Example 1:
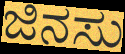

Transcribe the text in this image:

ಜಿನಸು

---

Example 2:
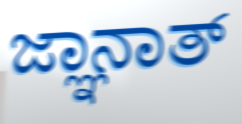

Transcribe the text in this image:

ಜ್ಞಾನಾತ್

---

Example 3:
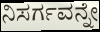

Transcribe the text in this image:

ನಿಸರ್ಗವನ್ನೇ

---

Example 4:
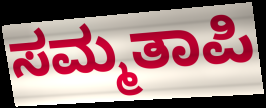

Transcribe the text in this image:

ಸಮ್ಮತಾಪಿ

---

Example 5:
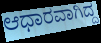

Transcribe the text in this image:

ಆಧಾರವಾಗಿದ್ದ